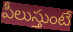
పీలుస్తుంటే